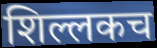
शिल्लकच